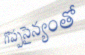
గొప్పసైన్యంతో